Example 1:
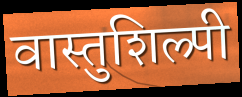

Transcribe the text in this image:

वास्तुशिल्पी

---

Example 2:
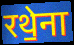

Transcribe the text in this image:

रथे॒ना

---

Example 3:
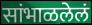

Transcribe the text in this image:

सांभाळलेलं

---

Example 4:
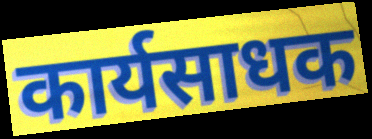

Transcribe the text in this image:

कार्यसाधक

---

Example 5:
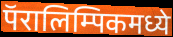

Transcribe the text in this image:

पॅरालिम्पिकमध्ये